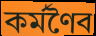
কর্মণৈব